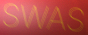
SWAS